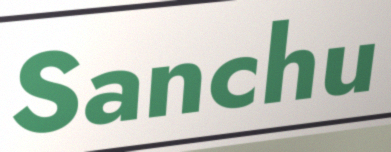
Sanchu